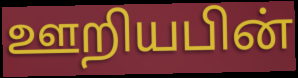
ஊறியபின்